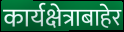
कार्यक्षेत्राबाहेर